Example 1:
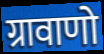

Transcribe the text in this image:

ग्रावाणो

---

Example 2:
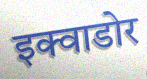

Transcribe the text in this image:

इक्‍वाडोर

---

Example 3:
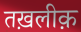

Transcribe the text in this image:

तख़लीक़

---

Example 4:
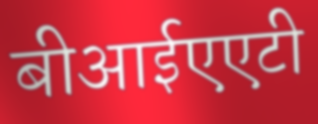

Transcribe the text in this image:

बीआईएएटी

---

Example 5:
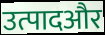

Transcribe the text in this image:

उत्पादऔर